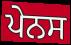
ਪੇਨਸ